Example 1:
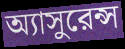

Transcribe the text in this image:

অ্যাসুরেন্স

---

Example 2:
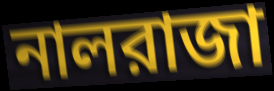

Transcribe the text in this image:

নালরাজা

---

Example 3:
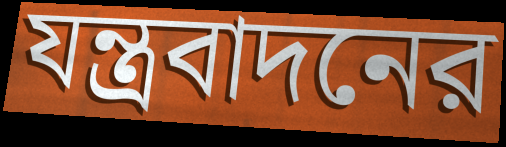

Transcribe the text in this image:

যন্ত্রবাদনের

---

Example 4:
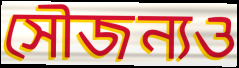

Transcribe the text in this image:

সৌজন্যও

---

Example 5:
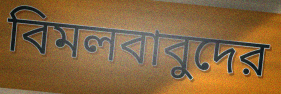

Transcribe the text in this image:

বিমলবাবুদের